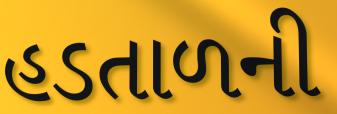
હડતાળની